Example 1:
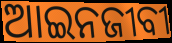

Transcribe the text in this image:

ଆଇନଜୀବୀ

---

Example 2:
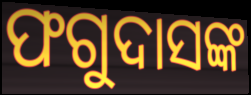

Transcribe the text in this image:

ଫଗୁଦାସଙ୍କ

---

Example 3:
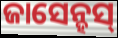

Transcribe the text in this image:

ଜାସେନ୍ହସ୍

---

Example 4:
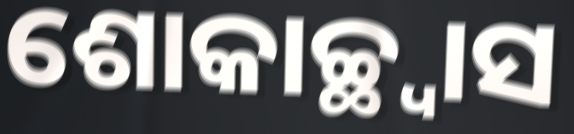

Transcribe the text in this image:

ଶୋକାଚ୍ଛ୍ୱାସ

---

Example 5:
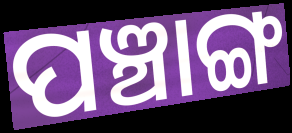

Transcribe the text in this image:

ପଞ୍ଚାଙ୍ଗ